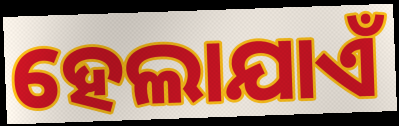
ହେଲାଯାଏଁ